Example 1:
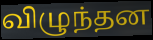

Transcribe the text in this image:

விழுந்தன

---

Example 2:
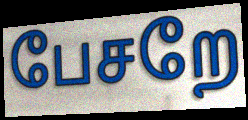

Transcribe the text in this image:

பேசறே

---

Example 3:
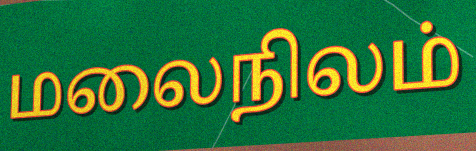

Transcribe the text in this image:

மலைநிலம்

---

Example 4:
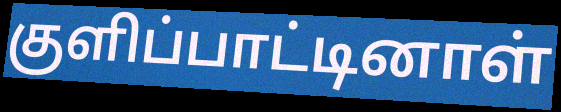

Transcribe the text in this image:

குளிப்பாட்டினாள்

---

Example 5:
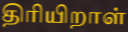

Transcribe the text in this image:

திரியிறாள்